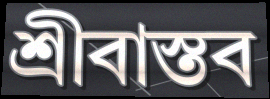
শ্রীবাস্তব